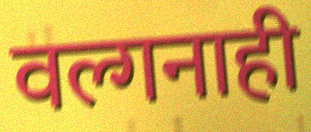
वल्गनाही